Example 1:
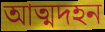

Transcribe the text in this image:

আত্মদহন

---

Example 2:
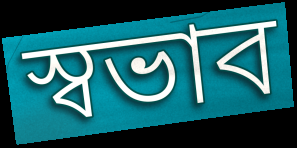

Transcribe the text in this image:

স্বভাব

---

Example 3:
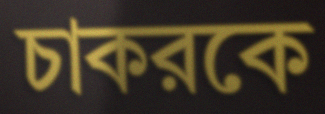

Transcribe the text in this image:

চাকরকে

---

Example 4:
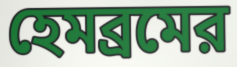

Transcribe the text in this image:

হেমব্রমের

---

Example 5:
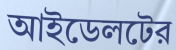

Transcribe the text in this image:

আইডেলটের